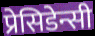
प्रेसिडेन्सी